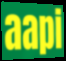
aapi